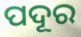
ପଦୂର